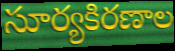
సూర్యకిరణాల